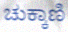
ಚುಕ್ಕಾಣಿ